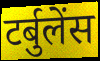
टर्बुलेंस